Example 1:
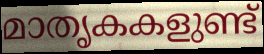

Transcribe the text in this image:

മാതൃകകളുണ്ട്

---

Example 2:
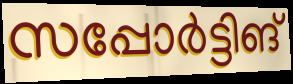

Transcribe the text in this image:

സപ്പോർട്ടിങ്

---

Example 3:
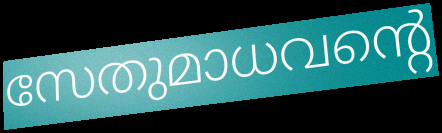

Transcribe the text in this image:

സേതുമാധവന്റെ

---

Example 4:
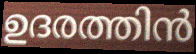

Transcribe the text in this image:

ഉദരത്തിൻ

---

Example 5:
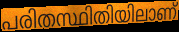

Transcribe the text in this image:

പരിതസ്ഥിതിയിലാണ്